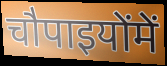
चौपाइयोंमें